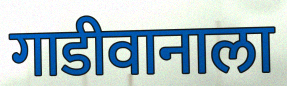
गाडीवानाला